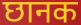
छानक